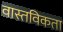
वास्तविकता